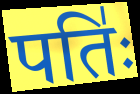
पतिः॑